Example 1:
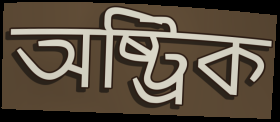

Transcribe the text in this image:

অষ্ট্রিক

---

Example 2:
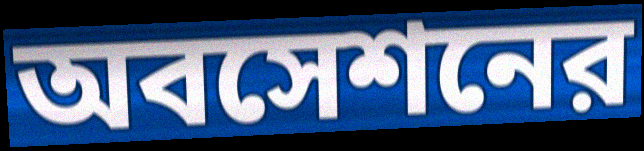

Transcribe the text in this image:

অবসেশনের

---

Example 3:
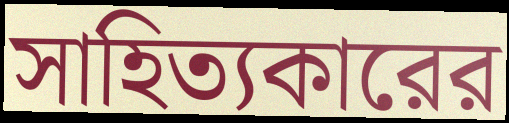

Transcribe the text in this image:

সাহিত্যকারের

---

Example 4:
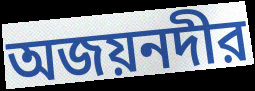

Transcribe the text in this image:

অজয়নদীর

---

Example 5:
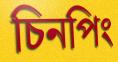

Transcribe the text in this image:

চিনপিং